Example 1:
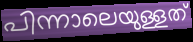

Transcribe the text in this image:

പിന്നാലെയുള്ളത്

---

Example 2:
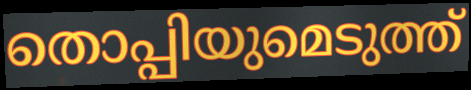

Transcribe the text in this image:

തൊപ്പിയുമെടുത്ത്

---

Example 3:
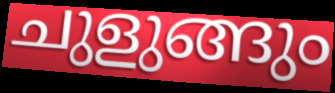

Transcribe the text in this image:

ചുളുങ്ങും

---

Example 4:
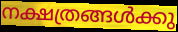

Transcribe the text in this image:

നക്ഷത്രങ്ങൾക്കു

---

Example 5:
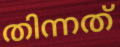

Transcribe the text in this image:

തിന്നത്